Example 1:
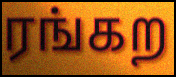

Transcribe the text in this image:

ரங்கற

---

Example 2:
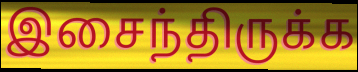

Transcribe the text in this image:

இசைந்திருக்க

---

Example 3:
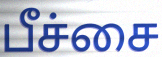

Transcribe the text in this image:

பீச்சை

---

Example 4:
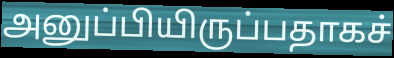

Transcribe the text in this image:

அனுப்பியிருப்பதாகச்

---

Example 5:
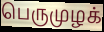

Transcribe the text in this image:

பெருமுழக்